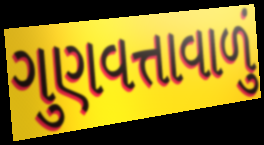
ગુણવત્તાવાળું